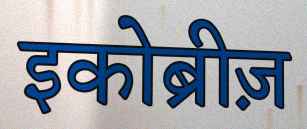
इकोब्रीज़